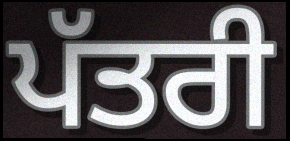
ਪੱਤਰੀ